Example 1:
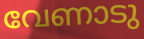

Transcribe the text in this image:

വേണാടു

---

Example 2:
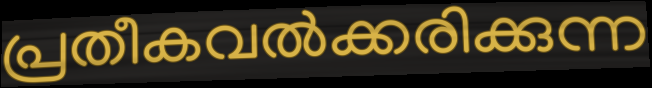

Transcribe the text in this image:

പ്രതീകവൽക്കരിക്കുന്ന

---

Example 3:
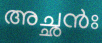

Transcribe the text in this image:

അച്ഛൻഃ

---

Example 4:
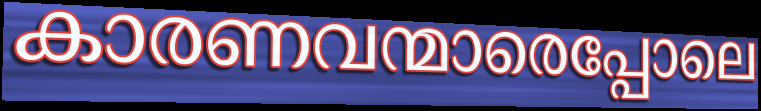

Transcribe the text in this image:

കാരണവന്മാരെപ്പോലെ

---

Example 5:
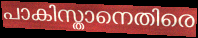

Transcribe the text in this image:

പാകിസ്താനെതിരെ